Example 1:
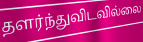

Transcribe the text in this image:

தளர்ந்துவிடவில்லை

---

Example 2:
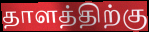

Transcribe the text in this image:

தாளத்திற்கு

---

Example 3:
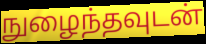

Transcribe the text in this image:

நுழைந்தவுடன்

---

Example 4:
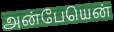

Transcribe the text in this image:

அன்பேயென்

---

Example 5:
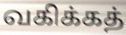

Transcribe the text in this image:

வகிக்கத்